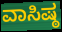
ವಾಸಿಷ್ಠ